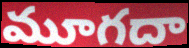
మూగదా